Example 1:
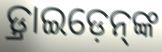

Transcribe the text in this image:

ଡ଼୍ରାଇଡ଼େନ୍‌ଙ୍କ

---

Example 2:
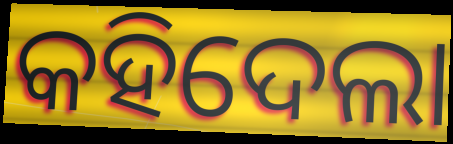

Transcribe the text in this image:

କହିଦେଲା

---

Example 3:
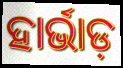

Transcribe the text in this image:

ହାର୍ଭାଡ଼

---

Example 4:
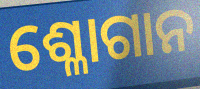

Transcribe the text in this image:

ଶ୍ଳୋଗାନ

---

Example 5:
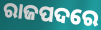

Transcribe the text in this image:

ରାଜପଦରେ